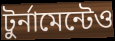
টুর্নামেন্টেও